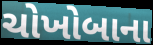
ચોખોબાના